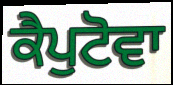
ਕੈਪੁਟੋਵਾ